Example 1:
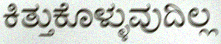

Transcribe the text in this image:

ಕಿತ್ತುಕೊಳ್ಳುವುದಿಲ್ಲ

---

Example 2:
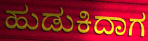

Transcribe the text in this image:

ಹುಡುಕಿದಾಗ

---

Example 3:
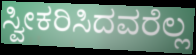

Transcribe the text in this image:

ಸ್ವೀಕರಿಸಿದವರೆಲ್ಲ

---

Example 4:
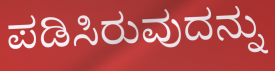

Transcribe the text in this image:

ಪಡಿಸಿರುವುದನ್ನು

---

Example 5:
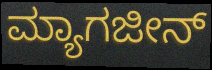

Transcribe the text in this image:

ಮ್ಯಾಗಜೀನ್